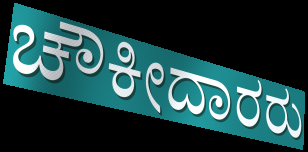
ಚೌಕೀದಾರರು